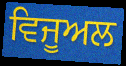
ਵਿਜੂਅਲ